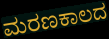
ಮರಣಕಾಲದ